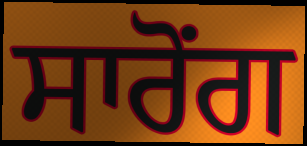
ਸਾਰੋਂਗ